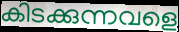
കിടക്കുന്നവളെ